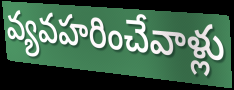
వ్యవహరించేవాళ్లు